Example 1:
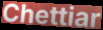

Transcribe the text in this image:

Chettiar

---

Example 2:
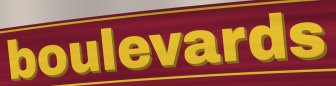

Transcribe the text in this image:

boulevards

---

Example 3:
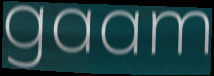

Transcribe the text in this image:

gaam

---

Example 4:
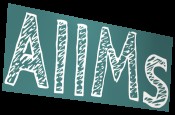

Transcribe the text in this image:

AIIMs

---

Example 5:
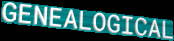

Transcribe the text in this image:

GENEALOGICAL